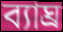
ব্যাঘ্ৰ